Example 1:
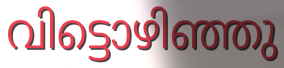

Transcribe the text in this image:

വിട്ടൊഴിഞ്ഞു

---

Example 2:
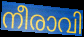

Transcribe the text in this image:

നീരാവി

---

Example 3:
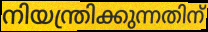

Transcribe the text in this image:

നിയന്ത്രിക്കുന്നതിന്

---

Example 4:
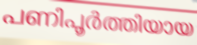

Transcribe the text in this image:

പണിപൂർത്തിയായ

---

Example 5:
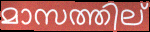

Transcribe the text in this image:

മാസത്തില്